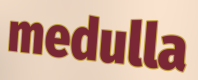
medulla